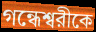
গন্ধেশ্বরীকে